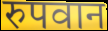
रुपवान